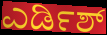
ಎರ್ಡಿಶ್